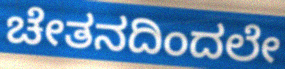
ಚೇತನದಿಂದಲೇ